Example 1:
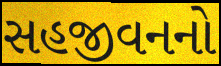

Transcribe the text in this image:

સહજીવનનો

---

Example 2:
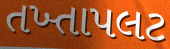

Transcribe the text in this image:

તખ્તાપલટ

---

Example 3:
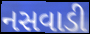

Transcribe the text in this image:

નસવાડી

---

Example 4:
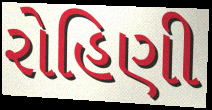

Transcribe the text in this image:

રોહિણી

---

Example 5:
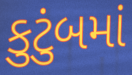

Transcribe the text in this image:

કુટુંબમાં